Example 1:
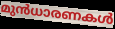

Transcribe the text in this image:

മുൻധാരണകൾ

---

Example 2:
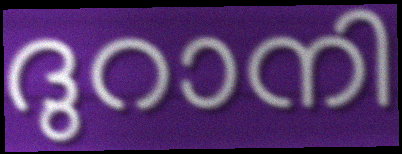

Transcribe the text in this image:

ദുറാനി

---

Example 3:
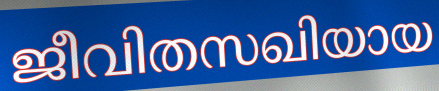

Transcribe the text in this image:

ജീവിതസഖിയായ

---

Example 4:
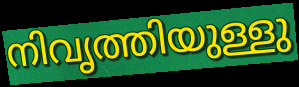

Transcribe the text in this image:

നിവൃത്തിയുള്ളു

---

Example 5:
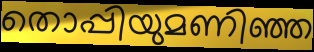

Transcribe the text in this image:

തൊപ്പിയുമണിഞ്ഞ